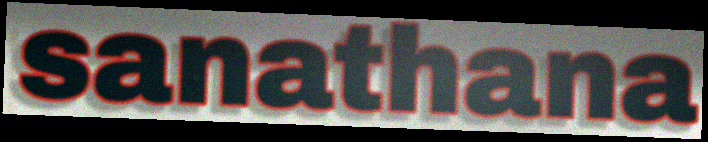
sanathana